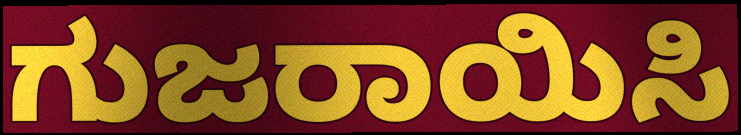
ಗುಜರಾಯಿಸಿ